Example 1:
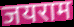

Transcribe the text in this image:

जयराम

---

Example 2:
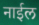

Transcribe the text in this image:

नाईल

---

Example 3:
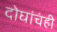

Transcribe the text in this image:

दोघांचंही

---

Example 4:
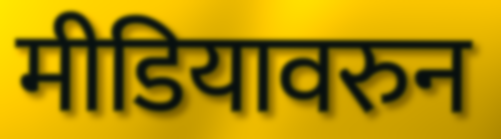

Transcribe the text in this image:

मीडियावरुन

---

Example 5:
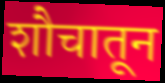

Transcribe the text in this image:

शौचातून